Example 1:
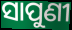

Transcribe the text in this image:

ସାପୁଣୀ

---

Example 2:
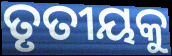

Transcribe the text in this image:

ତୃତୀୟକୁ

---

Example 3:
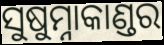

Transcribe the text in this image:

ସୁଷୁମ୍ନାକାଣ୍ଡର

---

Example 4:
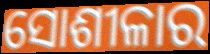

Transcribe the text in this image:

ସୋଶୀଳାର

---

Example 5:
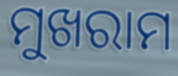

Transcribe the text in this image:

ମୁଖରାମ